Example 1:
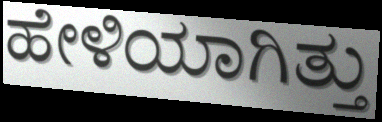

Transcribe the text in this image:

ಹೇಳಿಯಾಗಿತ್ತು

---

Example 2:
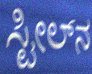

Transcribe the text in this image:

ಸ್ಟೀಲ್‌ನ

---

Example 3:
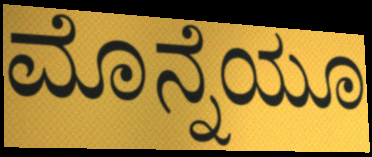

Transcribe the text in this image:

ಮೊನ್ನೆಯೂ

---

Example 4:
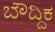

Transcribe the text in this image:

ಬೌದ್ದಿಕ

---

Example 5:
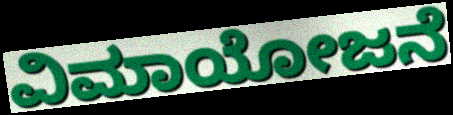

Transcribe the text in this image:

ವಿಮಾಯೋಜನೆ